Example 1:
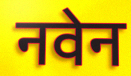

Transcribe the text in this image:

नवेन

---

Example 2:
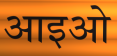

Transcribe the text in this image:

आइओ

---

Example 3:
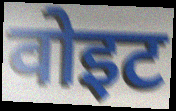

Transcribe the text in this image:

वोइट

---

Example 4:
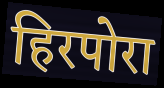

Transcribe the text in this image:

हिरपोरा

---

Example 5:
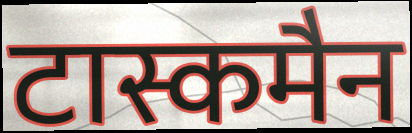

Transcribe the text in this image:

टास्कमैन